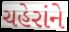
ચહેરાંને